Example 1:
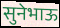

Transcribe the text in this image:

सुनेभाऊ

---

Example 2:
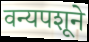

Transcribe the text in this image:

वन्यपशूने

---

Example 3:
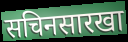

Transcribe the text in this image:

सचिनसारखा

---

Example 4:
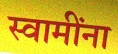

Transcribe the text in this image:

स्वामींना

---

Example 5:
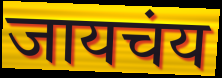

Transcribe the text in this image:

जायचंय